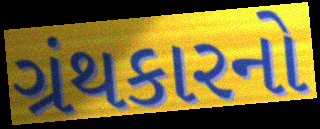
ગ્રંથકારનો